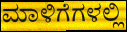
ಮಾಳಿಗೆಗಳಲ್ಲಿ